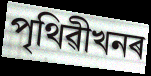
পৃথিৱীখনৰ